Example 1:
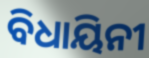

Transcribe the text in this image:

ବିଧାୟିନୀ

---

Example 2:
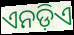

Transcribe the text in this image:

ଏନଡ଼ିଏ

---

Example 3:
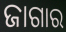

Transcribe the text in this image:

ଜାଗାର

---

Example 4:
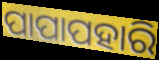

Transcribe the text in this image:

ପାପାପହାରି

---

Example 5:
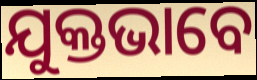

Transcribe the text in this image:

ଯୁକ୍ତଭାବେ